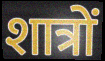
शात्रों